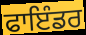
ਫਾਇੰਡਰ